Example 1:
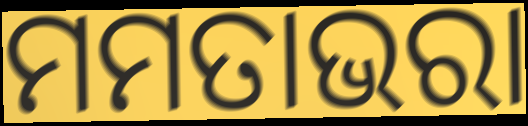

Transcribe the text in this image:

ମମତାଭରା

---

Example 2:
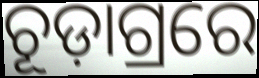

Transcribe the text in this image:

ଚୂଡ଼ାଗ୍ରରେ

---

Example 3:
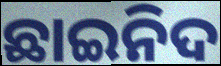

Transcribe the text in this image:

ଛାଇନିଦ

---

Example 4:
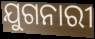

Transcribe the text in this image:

ଯୁଗନାରୀ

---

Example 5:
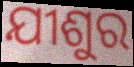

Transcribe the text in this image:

ଯୀଶୁର